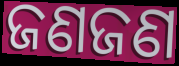
ଜଣଜଣ